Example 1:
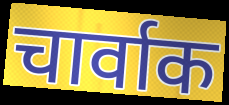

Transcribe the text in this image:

चार्वाक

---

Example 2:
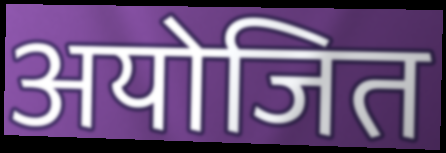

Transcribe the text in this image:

अयोजित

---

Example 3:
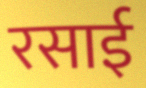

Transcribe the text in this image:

रसाई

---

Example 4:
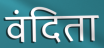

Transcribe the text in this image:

वंदिता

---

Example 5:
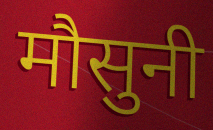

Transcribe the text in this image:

मौसुनी